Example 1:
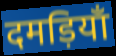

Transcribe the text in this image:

दमड़ियाँ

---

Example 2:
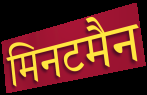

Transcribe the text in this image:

मिनटमैन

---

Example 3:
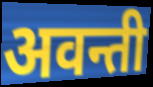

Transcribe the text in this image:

अवन्ती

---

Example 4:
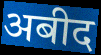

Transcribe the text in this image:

अबीद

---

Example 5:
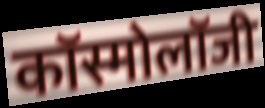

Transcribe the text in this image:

कॉस्मोलॉजी